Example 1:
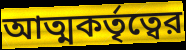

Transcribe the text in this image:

আত্মকর্তৃত্বের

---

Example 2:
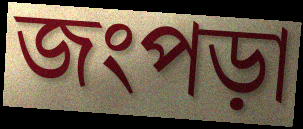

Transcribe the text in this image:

জংপড়া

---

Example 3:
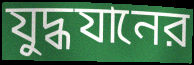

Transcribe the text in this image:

যুদ্ধযানের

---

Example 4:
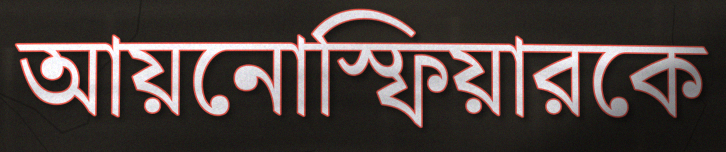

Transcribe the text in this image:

আয়নোস্ফিয়ারকে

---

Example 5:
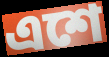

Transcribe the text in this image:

এশে